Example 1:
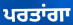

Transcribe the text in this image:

ਪਰਤਾਂਗਾ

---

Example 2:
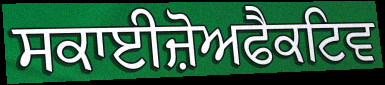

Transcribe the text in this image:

ਸਕਾਈਜ਼ੋਅਫੈਕਟਿਵ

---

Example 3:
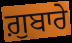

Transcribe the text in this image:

ਗ਼ੁਬਾਰੇ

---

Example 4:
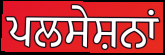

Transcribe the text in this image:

ਪਲਸੇਸ਼ਨਾਂ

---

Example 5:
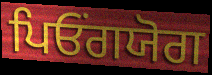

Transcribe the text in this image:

ਪਿਓਂਗਯੋਗ